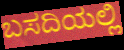
ಬಸದಿಯಲ್ಲಿ